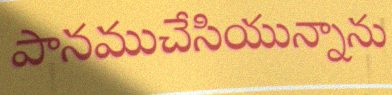
పానముచేసియున్నాను